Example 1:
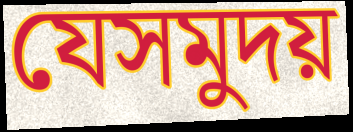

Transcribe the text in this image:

যেসমুদয়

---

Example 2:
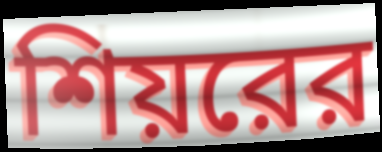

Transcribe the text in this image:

শিয়রের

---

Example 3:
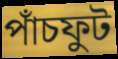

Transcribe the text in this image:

পাঁচফুট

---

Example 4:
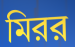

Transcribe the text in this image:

মিরর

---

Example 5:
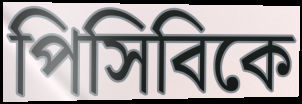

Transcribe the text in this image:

পিসিবিকে